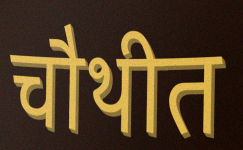
चौथीत